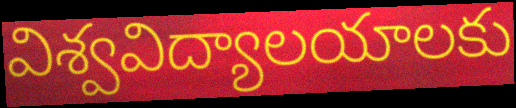
విశ్వవిద్యాలయాలకు